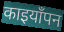
काइयाँपन